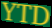
YTD